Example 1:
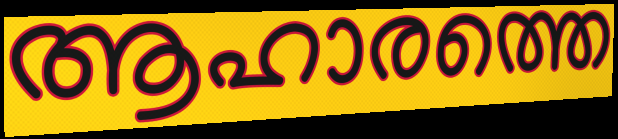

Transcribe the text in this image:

ആഹാരത്തെ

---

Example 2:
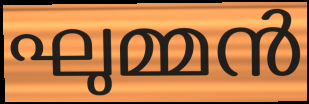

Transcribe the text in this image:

ഘുമ്മൻ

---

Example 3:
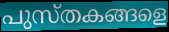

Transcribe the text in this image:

പുസ്തകങ്ങളെ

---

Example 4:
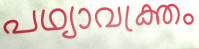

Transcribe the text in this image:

പഥ്യാവക്ത്രം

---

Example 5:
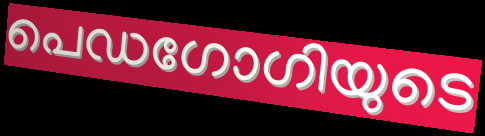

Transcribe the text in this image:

പെഡഗോഗിയുടെ